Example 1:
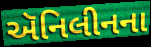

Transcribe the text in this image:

ઍનિલીનના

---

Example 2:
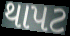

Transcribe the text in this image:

થાપટ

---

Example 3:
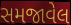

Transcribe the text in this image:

સમજાવેલ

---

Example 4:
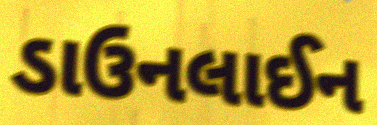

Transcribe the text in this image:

ડાઉનલાઈન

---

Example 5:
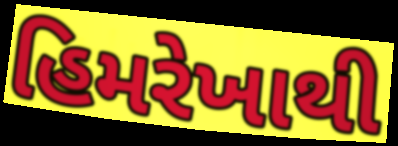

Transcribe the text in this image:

હિમરેખાથી